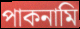
পাকনামি